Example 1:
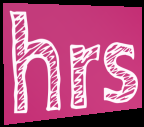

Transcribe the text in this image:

hrs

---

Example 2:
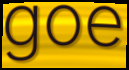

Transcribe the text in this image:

goe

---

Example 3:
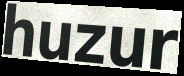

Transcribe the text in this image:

huzur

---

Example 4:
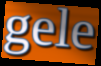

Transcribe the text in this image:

gele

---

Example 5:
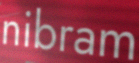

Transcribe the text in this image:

nibram